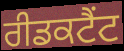
ਰੀਡਕਟੈਂਟ